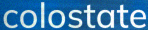
colostate